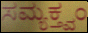
ಸಮ್ಯಕ್ತ್ವಂ